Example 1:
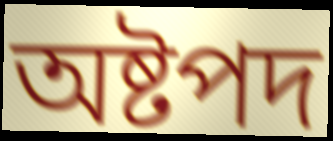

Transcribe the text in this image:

অষ্টপদ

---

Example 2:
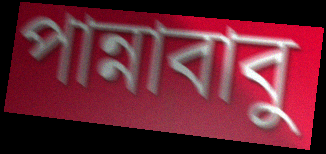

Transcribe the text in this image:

পান্নাবাবু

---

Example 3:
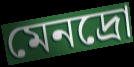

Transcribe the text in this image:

মেনদ্রো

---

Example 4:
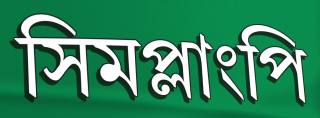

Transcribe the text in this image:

সিমপ্লাংপি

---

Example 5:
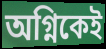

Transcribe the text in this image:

অগ্নিকেই